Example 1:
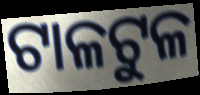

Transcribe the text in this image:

ଟାଳଟୁଳ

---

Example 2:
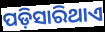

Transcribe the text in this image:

ପଡ଼ିସାରିଥାଏ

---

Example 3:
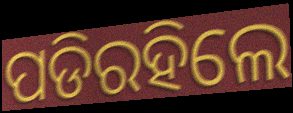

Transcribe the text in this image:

ପଡିରହିଲେ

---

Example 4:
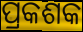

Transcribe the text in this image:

ପ୍ରକଶକ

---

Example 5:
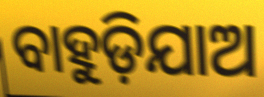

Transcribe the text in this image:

ବାହୁଡ଼ିଯାଅ